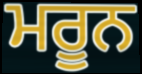
ਮਰੂਨ